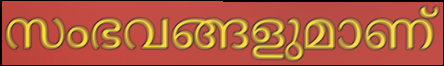
സംഭവങ്ങളുമാണ്